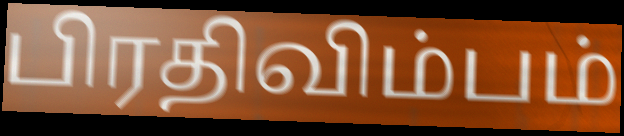
பிரதிவிம்பம்